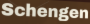
Schengen